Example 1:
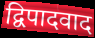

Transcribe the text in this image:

द्विपादवाद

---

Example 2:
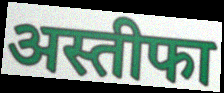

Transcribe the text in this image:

अस्तीफा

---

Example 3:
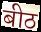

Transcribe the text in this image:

बीठ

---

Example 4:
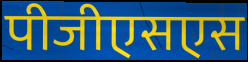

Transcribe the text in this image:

पीजीएसएस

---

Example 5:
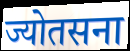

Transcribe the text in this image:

ज्योतसना